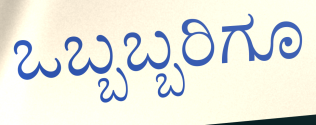
ಒಬ್ಬಬ್ಬರಿಗೂ